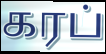
கரப்